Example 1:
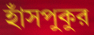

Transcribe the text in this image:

হাঁসপুকুর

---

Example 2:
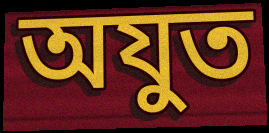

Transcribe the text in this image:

অযুত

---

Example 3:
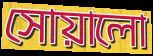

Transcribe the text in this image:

সোয়ালো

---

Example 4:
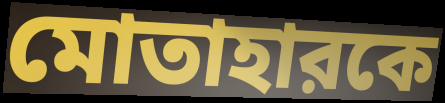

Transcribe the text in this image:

মোতাহারকে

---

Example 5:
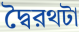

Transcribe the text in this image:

দ্বৈরথটা